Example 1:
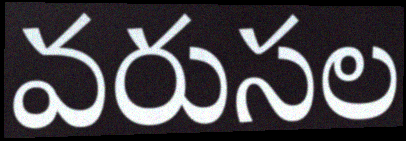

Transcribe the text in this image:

వరుసల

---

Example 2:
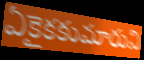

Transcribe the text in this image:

ఏకైకకుమారుని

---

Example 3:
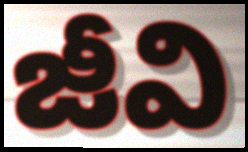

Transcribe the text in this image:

జీవి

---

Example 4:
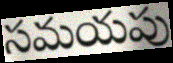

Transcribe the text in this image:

సమయపు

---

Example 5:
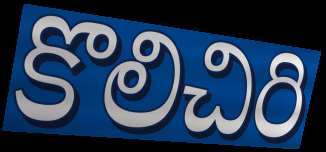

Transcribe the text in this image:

కొలిచిరి